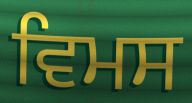
ਵਿਮਸ